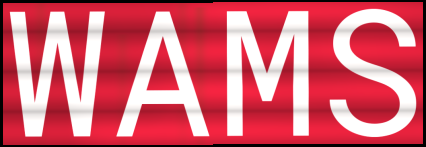
WAMS